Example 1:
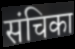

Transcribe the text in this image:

संचिका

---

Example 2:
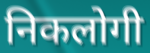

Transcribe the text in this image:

निकलोगी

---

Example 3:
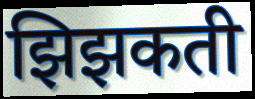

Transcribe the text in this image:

झिझकती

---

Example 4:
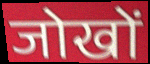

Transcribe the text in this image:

जोखों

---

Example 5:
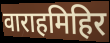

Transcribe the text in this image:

वाराहमिहिर